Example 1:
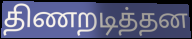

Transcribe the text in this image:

திணறடித்தன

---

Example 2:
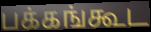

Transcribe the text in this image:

பக்கங்கூட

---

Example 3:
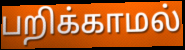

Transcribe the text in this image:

பறிக்காமல்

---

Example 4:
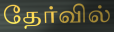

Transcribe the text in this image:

தேர்வில்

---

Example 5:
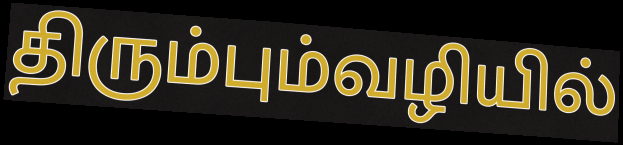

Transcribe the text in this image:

திரும்பும்வழியில்